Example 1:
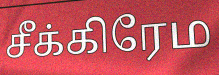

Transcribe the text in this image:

சீக்கிரேம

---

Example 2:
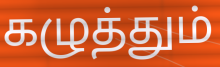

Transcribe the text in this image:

கழுத்தும்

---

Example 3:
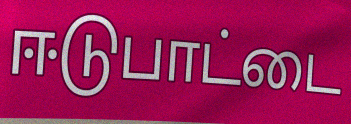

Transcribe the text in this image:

ஈடுபாட்டை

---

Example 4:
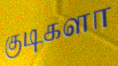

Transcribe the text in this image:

குடிகளா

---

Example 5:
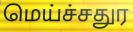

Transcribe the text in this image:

மெய்ச்சதுர